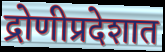
द्रोणीप्रदेशात